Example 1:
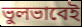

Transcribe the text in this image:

ভুলভাবেই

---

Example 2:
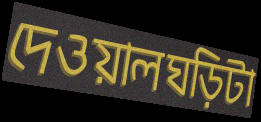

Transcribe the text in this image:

দেওয়ালঘড়িটা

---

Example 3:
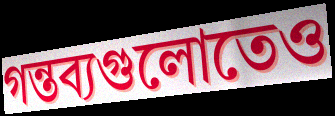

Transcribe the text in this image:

গন্তব্যগুলোতেও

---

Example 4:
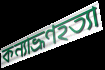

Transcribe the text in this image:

কন্যাভ্রূণহত্যা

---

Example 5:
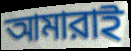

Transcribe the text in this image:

আমারাই